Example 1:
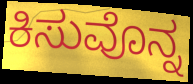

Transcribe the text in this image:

ಕಿಸುವೊನ್ನ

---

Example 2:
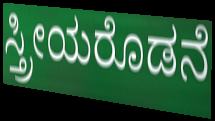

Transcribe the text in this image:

ಸ್ತ್ರೀಯರೊಡನೆ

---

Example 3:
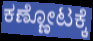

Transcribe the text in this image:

ಕಣ್ಣೋಟಕ್ಕೆ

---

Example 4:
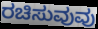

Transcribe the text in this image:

ರಚಿಸುವುವು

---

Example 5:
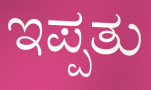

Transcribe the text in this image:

ಇಪ್ಪತು